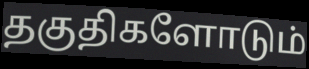
தகுதிகளோடும்